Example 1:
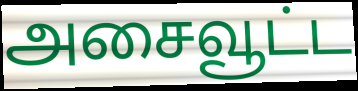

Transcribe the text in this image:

அசைவூட்ட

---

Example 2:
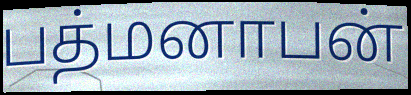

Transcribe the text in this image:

பத்மனாபன்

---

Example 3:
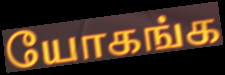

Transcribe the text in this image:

யோகங்க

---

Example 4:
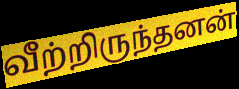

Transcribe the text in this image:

வீற்றிருந்தனன்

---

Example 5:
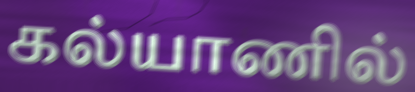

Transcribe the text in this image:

கல்யாணில்